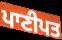
ਪਾਣੀਪਤ